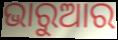
ଭାରୁଆର